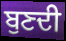
ਬੁਣਦੀ